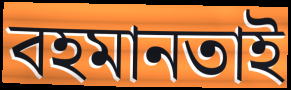
বহমানতাই